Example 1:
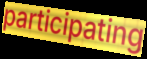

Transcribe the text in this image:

participating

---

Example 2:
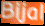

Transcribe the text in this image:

Bijal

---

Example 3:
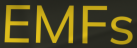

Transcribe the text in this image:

EMFs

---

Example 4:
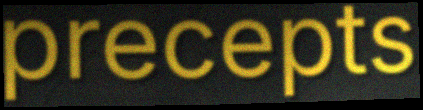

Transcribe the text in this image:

precepts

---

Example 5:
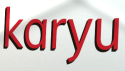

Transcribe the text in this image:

karyu